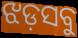
ଝଡ଼ସବୁ